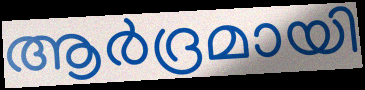
ആർദ്രമായി